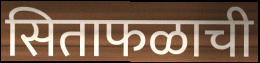
सिताफळाची